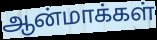
ஆன்மாக்கள்